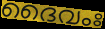
ദൈവംഃ